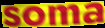
soma